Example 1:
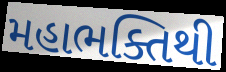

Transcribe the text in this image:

મહાભક્તિથી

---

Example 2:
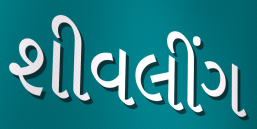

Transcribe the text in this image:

શીવલીંગ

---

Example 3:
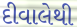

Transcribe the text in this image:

દીવાલેથી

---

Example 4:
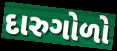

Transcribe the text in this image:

દારુગોળો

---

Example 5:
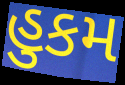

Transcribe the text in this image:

હુકમ